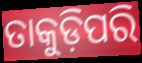
ତାକୁଡ଼ିପରି